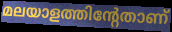
മലയാളത്തിന്റേതാണ്